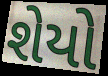
શેયો